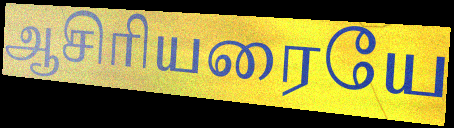
ஆசிரியரையே